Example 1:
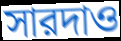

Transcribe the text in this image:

সারদাও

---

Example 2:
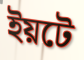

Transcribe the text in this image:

ইয়টে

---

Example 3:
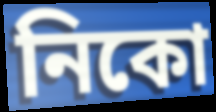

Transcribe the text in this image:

নিকো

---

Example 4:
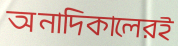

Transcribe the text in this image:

অনাদিকালেরই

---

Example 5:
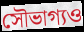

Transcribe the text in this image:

সৌভাগ্যও